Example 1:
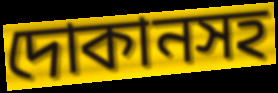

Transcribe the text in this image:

দোকানসহ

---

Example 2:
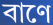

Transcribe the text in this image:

বাণে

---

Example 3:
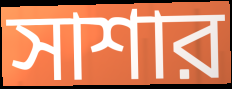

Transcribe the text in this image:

সাশার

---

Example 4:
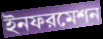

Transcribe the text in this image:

ইনফরমেশন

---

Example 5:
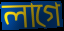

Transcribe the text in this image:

লাগে